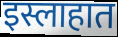
इस्लाहात